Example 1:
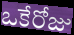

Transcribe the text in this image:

ఒకేరోజు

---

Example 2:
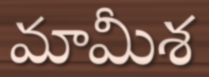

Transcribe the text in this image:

మామీశ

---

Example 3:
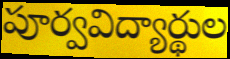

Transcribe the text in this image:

పూర్వవిద్యార్థుల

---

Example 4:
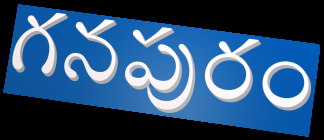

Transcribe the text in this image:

గనపురం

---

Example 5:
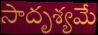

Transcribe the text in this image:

సాదృశ్యమే